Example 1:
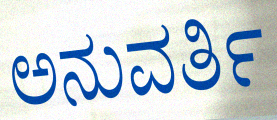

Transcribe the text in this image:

ಅನುವರ್ತಿ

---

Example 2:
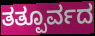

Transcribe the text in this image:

ತತ್ಪೂರ್ವದ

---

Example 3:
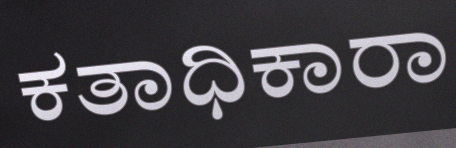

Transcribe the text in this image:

ಕತಾಧಿಕಾರಾ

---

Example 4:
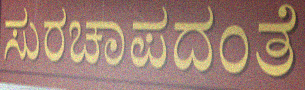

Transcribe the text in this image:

ಸುರಚಾಪದಂತೆ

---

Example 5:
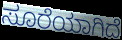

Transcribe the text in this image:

ಸೂರೆಯಾಗಿದೆ